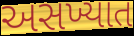
અસખ્યાત